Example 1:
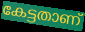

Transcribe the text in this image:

കേട്ടതാണ്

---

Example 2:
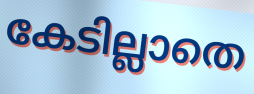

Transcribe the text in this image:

കേടില്ലാതെ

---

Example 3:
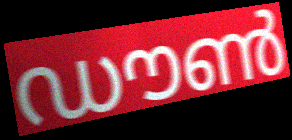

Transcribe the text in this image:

ഡൗൺ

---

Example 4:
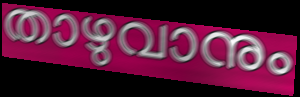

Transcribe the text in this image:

താഴുവാനും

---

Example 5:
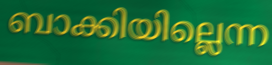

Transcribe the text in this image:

ബാക്കിയില്ലെന്ന